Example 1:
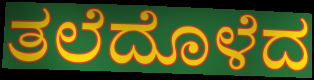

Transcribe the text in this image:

ತಲೆದೊಳೆದ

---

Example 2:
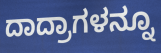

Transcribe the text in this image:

ದಾದ್ರಾಗಳನ್ನೂ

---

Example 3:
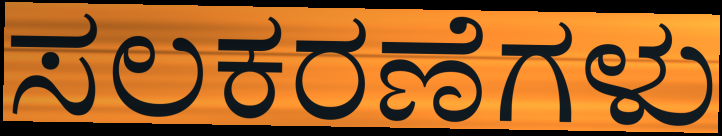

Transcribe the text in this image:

ಸಲಕರಣೆಗಳು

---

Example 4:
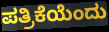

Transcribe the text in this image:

ಪತ್ರಿಕೆಯೆಂದು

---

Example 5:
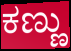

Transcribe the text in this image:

ಕಣ್ಣು